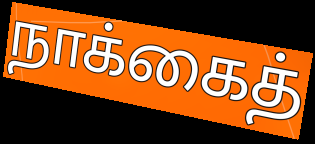
நாக்கைத்